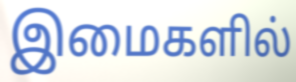
இமைகளில்